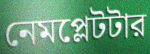
নেমপ্লেটটার